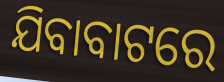
ଯିବାବାଟରେ